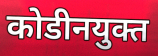
कोडीनयुक्त